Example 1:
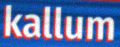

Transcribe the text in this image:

kallum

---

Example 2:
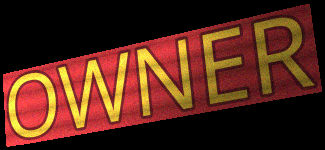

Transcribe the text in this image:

OWNER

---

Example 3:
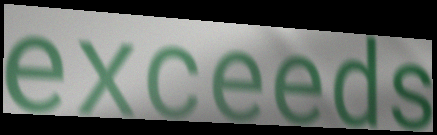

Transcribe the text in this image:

exceeds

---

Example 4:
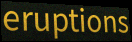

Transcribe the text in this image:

eruptions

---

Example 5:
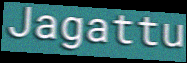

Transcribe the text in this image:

Jagattu